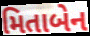
મિતાબેન